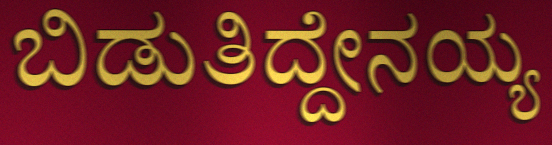
ಬಿಡುತಿದ್ದೇನಯ್ಯ